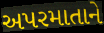
અપરમાતાને